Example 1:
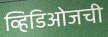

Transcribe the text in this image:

व्हिडिओजची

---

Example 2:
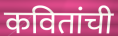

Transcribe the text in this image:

कवितांची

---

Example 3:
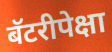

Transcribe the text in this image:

बॅटरीपेक्षा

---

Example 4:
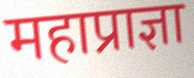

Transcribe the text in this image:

महाप्राज्ञा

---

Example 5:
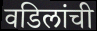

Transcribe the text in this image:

वडिलांची